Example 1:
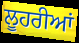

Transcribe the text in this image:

ਲੂਹਰੀਆਂ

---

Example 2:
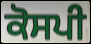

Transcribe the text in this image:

ਕੋਸਪੀ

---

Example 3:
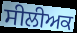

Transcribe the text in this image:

ਸੀਲੀਅਕ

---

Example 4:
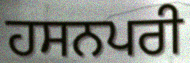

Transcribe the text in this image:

ਹਸਨਪਰੀ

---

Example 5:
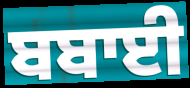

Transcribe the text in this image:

ਬਬਾਈ